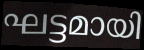
ഘട്ടമായി